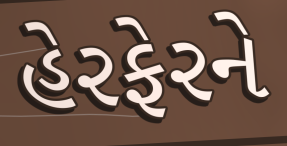
હેરફેરને